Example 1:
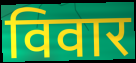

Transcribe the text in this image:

विवार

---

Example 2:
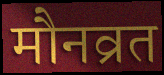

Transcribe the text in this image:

मौनव्रत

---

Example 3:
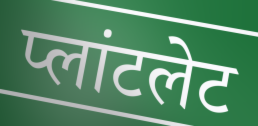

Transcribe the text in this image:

प्लांटलेट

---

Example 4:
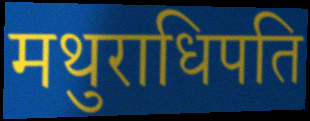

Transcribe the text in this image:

मथुराधिपति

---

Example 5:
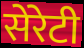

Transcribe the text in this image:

सेरेटी